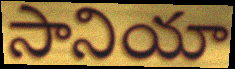
సానియా